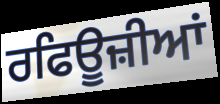
ਰਫਿਊਜ਼ੀਆਂ